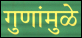
गुणांमुळे